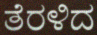
ತೆರಳಿದ